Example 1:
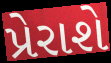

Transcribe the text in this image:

પ્રેરાશે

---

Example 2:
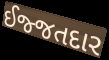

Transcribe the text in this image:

ઈજ્જતદાર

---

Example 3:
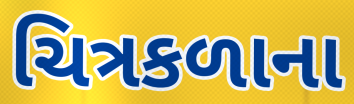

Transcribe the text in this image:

ચિત્રકળાના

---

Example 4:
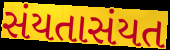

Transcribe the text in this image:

સંયતાસંયત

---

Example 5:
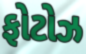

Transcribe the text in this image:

ફોટોઝ